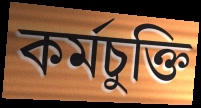
কর্মচুক্তি